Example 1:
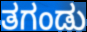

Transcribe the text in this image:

ತಗಂಡು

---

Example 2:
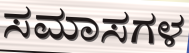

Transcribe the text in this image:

ಸಮಾಸಗಳ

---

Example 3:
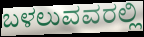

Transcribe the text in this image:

ಬಳಲುವವರಲ್ಲಿ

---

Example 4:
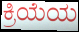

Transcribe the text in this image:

ಕ್ರಿಯೆಯ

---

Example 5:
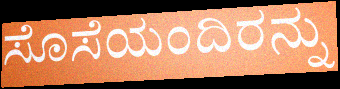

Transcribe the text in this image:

ಸೊಸೆಯಂದಿರನ್ನು